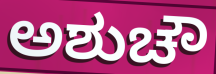
ಅಶುಚೌ